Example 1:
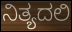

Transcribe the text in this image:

ನಿತ್ಯದಲಿ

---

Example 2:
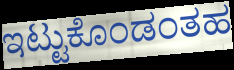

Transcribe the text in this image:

ಇಟ್ಟುಕೊಂಡಂತಹ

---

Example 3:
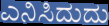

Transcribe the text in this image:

ಎನಿಸಿದುದು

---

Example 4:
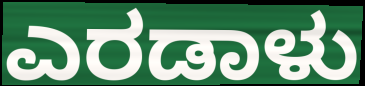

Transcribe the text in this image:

ಎರಡಾಳು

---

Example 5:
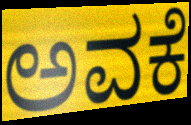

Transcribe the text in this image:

ಅವಕೆ